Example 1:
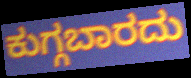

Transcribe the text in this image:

ಕುಗ್ಗಬಾರದು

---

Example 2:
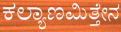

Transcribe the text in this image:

ಕಲ್ಯಾಣಮಿತ್ತೇನ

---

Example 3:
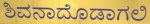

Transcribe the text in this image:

ಶಿವನಾದೊಡಾಗಲಿ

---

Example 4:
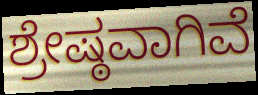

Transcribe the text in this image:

ಶ್ರೇಷ್ಠವಾಗಿವೆ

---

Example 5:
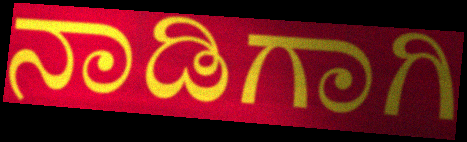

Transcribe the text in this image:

ನಾಡಿಗಾಗಿ